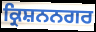
ਕ੍ਰਿਸ਼ਨਨਗਰ